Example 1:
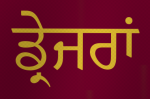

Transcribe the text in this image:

ਡ੍ਰੇਜਰਾਂ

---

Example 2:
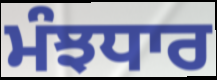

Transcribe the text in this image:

ਮੰਝਧਾਰ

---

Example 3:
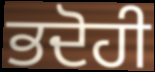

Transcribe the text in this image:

ਭਦੋਹੀ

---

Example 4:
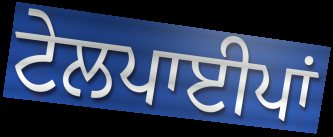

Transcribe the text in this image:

ਟੇਲਪਾਈਪਾਂ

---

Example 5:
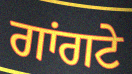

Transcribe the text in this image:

ਗਾਂਗਟੇ